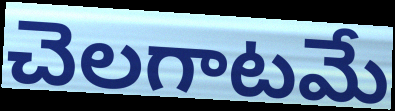
చెలగాటమే